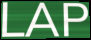
LAP